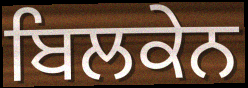
ਬਿਲਕੇਨ